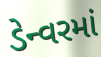
ડેન્વરમાં